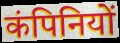
कंपिनियों